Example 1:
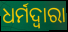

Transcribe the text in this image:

ଧର୍ମଦ୍ଵାରା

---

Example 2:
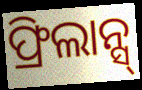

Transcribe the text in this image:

ଫ୍ରିଲାନ୍ସ୍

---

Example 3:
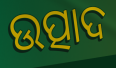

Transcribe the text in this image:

ଉତ୍ପାଦ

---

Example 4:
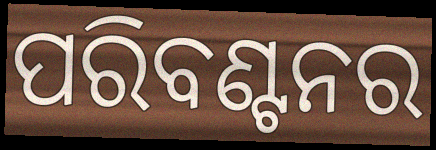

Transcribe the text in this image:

ପରିବଣ୍ଟନର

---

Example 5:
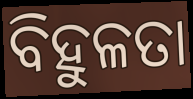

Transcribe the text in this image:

ବିହୁଳତା